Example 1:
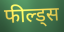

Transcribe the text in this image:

फील्ड्स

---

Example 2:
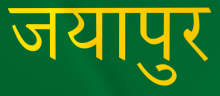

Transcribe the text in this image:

जयापुर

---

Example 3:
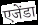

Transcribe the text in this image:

एजेंडा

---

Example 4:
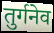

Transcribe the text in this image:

तुर्गनेव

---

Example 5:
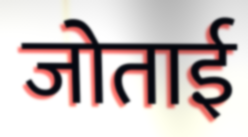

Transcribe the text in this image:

जोताई